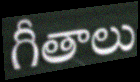
గీతాలు